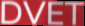
DVET